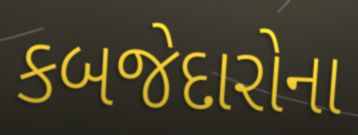
કબજેદારોના